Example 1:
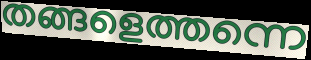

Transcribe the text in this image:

തങ്ങളെത്തന്നെ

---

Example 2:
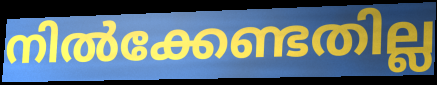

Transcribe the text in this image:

നിൽക്കേണ്ടതില്ല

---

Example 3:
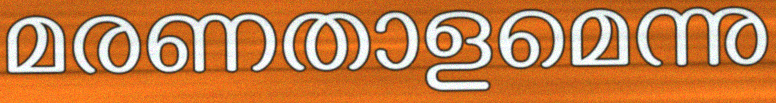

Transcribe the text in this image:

മരണതാളമെന്നു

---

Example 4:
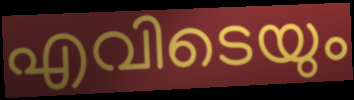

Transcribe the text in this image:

എവിടെയും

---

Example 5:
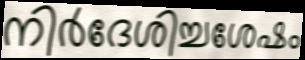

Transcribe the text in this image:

നിർദേശിച്ചശേഷം